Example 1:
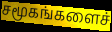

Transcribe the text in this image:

சமூகங்களைச்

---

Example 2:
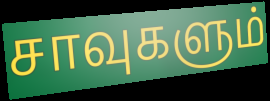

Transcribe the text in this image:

சாவுகளும்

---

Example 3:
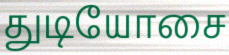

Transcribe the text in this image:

துடியோசை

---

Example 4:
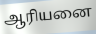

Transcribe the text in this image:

ஆரியனை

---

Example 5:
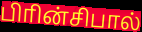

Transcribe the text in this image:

பிரின்சிபால்